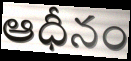
ఆధీనం